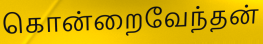
கொன்றைவேந்தன்